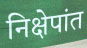
निक्षेपांत